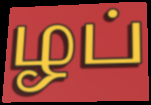
ழப்